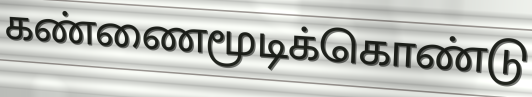
கண்ணைமூடிக்கொண்டு